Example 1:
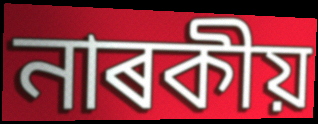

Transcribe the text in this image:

নাৰকীয়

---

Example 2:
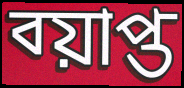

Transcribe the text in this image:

ব্য়াপ্ত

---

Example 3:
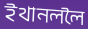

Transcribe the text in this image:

ইথানললৈ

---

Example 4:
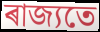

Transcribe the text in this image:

ৰাজ্যতে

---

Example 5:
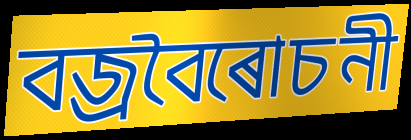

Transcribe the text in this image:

বজ্ৰবৈৰোচনী